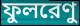
ফুলরেণু